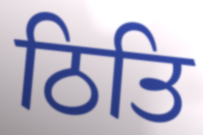
ਠਿਤਿ